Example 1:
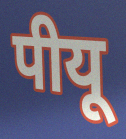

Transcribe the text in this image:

पीयू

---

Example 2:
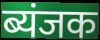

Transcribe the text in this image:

ब्यंजक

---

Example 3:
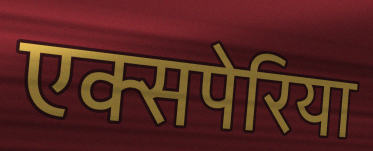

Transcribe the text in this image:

एक्सपेरिया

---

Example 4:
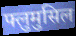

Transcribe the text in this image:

फ्लुमुसिल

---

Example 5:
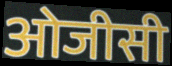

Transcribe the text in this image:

ओजीसी